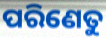
ପରିଣେତୁ